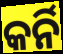
କର୍ନି